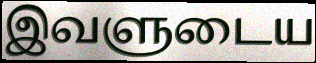
இவளுடைய